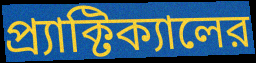
প্র্যাক্টিক্যালের